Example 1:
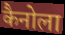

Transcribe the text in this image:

कैनोला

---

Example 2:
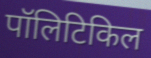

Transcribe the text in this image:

पॉलिटिकिल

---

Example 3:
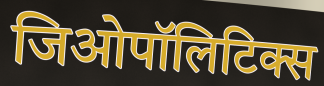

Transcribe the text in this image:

जिओपॉलिटिक्स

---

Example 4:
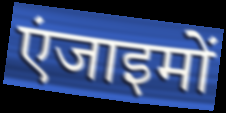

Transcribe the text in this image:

एंजाइमों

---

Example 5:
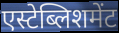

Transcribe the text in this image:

एस्टेब्लिशमेंट